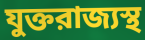
যুক্তরাজ্যস্থ